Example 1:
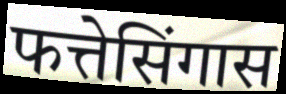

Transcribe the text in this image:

फत्तेसिंगास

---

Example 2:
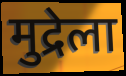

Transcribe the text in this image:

मुद्रेला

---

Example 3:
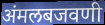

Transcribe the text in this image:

अंमलबजवणी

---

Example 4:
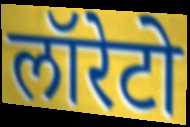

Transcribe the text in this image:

लॉरेटो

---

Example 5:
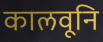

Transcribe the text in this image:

कालवूनि